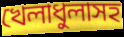
খেলাধুলাসহ